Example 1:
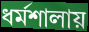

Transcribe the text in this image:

ধর্মশালায়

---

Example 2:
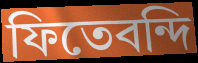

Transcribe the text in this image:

ফিতেবন্দি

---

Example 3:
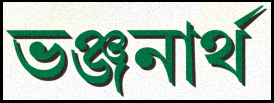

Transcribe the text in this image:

ভঞ্জনার্থ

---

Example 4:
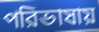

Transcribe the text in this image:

পরিভাষায়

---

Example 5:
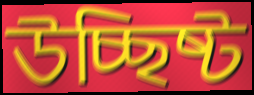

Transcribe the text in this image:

উচ্ছিষ্ট